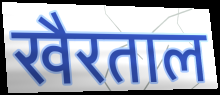
खैरताल